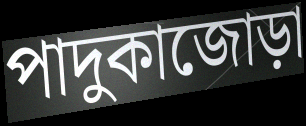
পাদুকাজোড়া